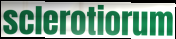
sclerotiorum